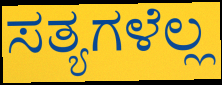
ಸತ್ಯಗಳೆಲ್ಲ